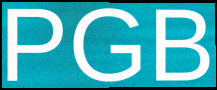
PGB